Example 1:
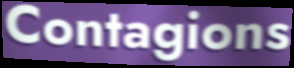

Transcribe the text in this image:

Contagions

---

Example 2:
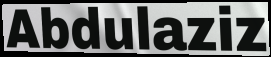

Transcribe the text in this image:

Abdulaziz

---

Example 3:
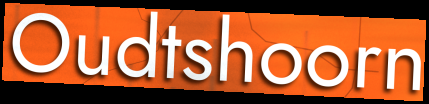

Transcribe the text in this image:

Oudtshoorn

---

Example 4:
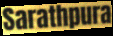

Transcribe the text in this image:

Sarathpura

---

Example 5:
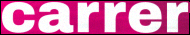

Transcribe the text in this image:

carrer